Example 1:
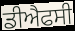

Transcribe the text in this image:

ਡੀਐਫਸੀ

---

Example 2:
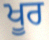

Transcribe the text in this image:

ਖੂਰ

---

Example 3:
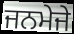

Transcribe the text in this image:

ਜਨਮੇਜੇ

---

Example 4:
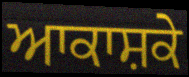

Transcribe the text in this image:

ਆਕਾਸ਼ਕੇ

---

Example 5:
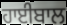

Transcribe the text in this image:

ਹਾਈਬਾਲ